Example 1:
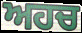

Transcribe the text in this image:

ਅਹਚ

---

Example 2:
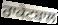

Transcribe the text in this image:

ਰਾਕੇਟਬਾਲ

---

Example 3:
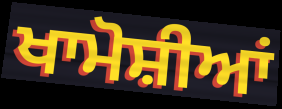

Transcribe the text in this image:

ਖਾਮੋਸ਼ੀਆਂ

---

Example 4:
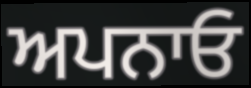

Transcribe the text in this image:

ਅਪਨਾਓ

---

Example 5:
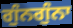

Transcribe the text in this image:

ਗੁੰਨਗੁੰਨਾ